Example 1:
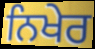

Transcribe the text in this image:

ਨਿਖੇਰ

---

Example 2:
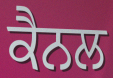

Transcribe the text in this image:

ਕੈਨਲ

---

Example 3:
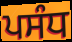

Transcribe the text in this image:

ਪਸੰਧ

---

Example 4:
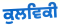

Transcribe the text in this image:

ਕੁਲਵਿਕੀ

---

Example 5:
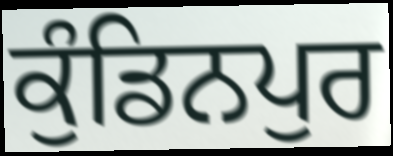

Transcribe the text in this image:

ਕੁੰਡਿਨਪੁਰ